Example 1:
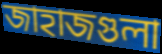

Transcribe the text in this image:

জাহাজগুলা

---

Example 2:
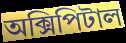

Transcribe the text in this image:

অক্সিপিটাল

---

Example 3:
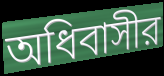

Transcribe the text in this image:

অধিবাসীর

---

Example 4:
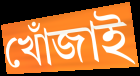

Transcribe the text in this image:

খোঁজাই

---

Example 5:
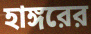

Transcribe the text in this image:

হাঙ্গরের